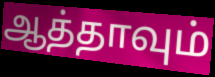
ஆத்தாவும்